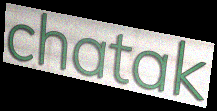
chatak